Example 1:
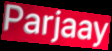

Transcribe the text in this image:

Parjaay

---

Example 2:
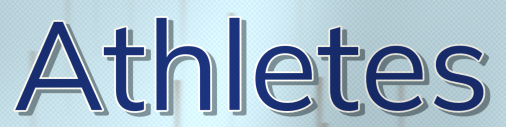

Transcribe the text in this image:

Athletes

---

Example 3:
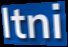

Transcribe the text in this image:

Itni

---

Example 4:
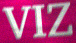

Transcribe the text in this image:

VIZ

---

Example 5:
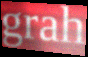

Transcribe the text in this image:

grah